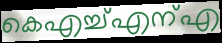
കെഎച്ച്എന്എ